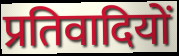
प्रतिवादियों